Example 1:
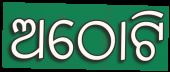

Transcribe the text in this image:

ଅଠୋଟି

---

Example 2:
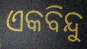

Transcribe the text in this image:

ଏକବିନ୍ଦୁ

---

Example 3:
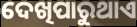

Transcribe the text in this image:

ଦେଖିପାରୁଥାଏ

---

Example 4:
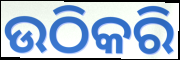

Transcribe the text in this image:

ଉଠିକରି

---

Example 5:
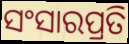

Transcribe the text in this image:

ସଂସାରପ୍ରତି